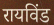
रायविंड